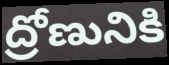
ద్రోణునికి